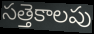
సత్తెకాలపు